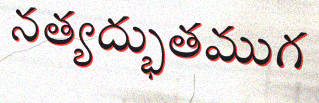
నత్యద్భుతముగ